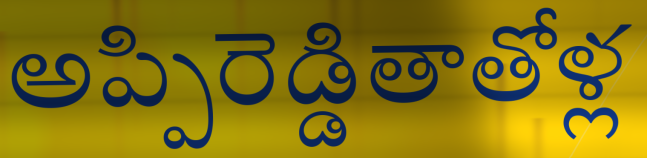
అప్పిరెడ్డితాతోళ్ల